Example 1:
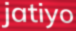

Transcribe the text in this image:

jatiyo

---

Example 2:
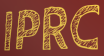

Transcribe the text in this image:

IPRC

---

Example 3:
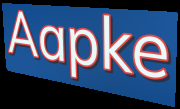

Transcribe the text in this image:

Aapke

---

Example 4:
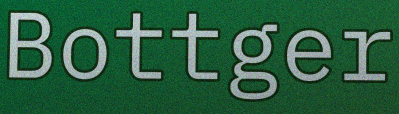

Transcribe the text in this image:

Bottger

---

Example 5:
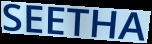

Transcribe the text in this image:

SEETHA